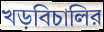
খড়বিচালির